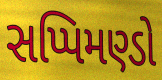
સપ્પિમણ્ડો